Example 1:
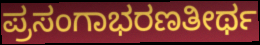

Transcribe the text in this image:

ಪ್ರಸಂಗಾಭರಣತೀರ್ಥ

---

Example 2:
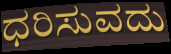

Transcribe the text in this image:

ಧರಿಸುವದು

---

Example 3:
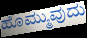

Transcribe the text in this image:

ಹೊಮ್ಮುವುದು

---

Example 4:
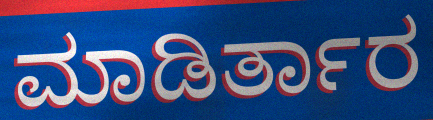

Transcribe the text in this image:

ಮಾಡಿರ್ತಾರ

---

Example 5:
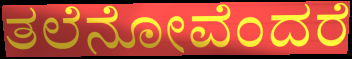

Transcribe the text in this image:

ತಲೆನೋವೆಂದರೆ